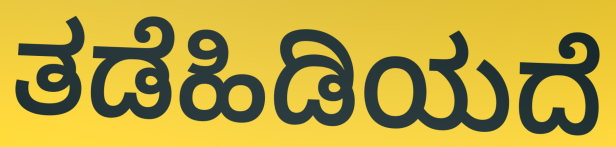
ತಡೆಹಿಡಿಯದೆ